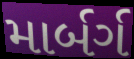
માર્બર્ગ